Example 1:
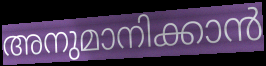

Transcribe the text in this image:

അനുമാനിക്കാൻ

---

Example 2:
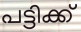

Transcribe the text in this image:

പട്ടിക്ക്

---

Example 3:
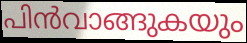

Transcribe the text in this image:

പിൻവാങ്ങുകയും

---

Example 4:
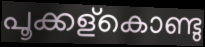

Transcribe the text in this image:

പൂക്കള്കൊണ്ടു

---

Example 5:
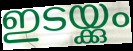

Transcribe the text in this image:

ഇടയ്ക്കും